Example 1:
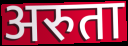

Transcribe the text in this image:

अरुता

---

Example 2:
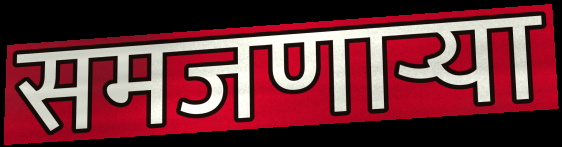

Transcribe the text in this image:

समजणाऱ्या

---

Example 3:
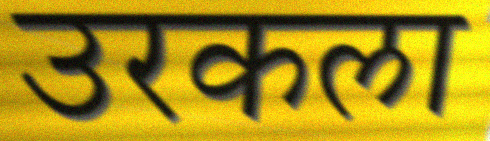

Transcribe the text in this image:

उरकला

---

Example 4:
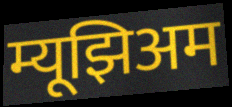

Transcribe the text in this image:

म्यूझिअम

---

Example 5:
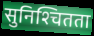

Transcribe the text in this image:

सुनिश्चितता